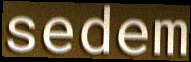
sedem